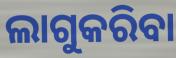
ଲାଗୁକରିବା